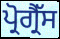
ਪ੍ਰੋਗ੍ਰੈੱਸ